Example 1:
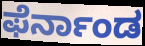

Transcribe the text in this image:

ಫೆರ್ನಾಂಡ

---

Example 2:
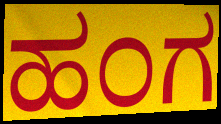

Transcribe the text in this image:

ಹಂಗ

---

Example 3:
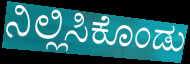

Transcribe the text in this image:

ನಿಲ್ಲಿಸಿಕೊಂಡು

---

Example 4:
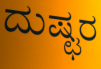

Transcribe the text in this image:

ದುಷ್ಟರ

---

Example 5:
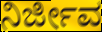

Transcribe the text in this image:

ನಿರ್ಜೀವ